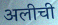
अलीची